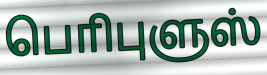
பெரிபுளுஸ்